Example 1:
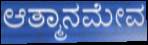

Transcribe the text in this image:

ಆತ್ಮಾನಮೇವ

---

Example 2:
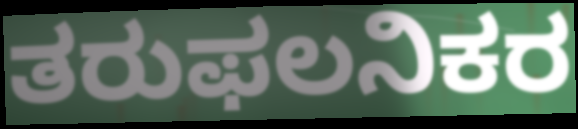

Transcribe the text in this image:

ತರುಫಲನಿಕರ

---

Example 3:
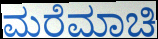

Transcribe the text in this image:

ಮರೆಮಾಚಿ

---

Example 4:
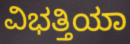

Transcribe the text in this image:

ವಿಭತ್ತಿಯಾ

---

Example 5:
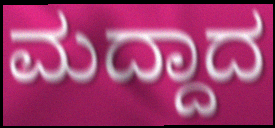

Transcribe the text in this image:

ಮದ್ದಾದ